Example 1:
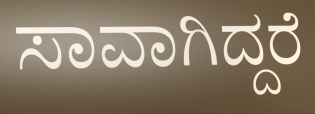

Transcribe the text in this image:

ಸಾವಾಗಿದ್ದರೆ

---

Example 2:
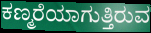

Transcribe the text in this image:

ಕಣ್ಮರೆಯಾಗುತ್ತಿರುವ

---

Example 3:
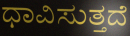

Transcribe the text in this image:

ಧಾವಿಸುತ್ತದೆ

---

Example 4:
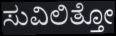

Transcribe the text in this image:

ಸುವಿಲಿತ್ತೋ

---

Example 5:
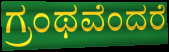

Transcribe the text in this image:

ಗ್ರಂಥವೆಂದರೆ